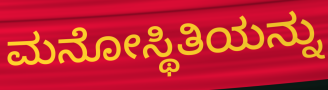
ಮನೋಸ್ಥಿತಿಯನ್ನು